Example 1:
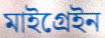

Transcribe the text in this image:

মাইগ্ৰেইন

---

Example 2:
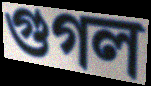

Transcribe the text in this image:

গুগল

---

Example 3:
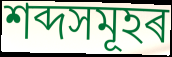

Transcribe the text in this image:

শব্দসমূহৰ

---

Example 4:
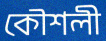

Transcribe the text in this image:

কৌশলী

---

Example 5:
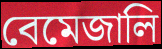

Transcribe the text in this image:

বেমেজালি